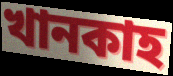
খানকাহ